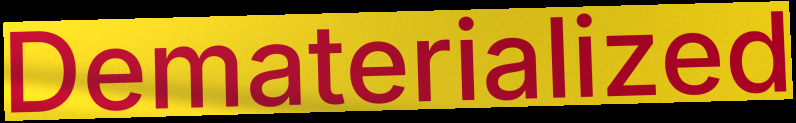
Dematerialized